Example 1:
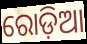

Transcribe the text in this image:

ରୋଡ଼ିଆ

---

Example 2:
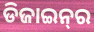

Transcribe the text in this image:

ଡିଜାଇନ୍‌ର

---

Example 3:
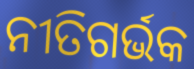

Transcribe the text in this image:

ନୀତିଗର୍ଭକ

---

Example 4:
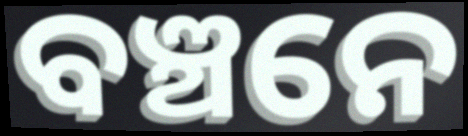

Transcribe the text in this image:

ବଞ୍ଚନେ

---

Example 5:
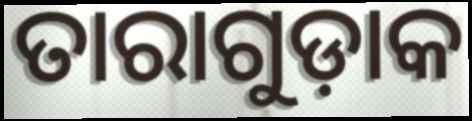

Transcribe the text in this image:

ତାରାଗୁଡ଼ାକ